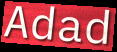
Adad